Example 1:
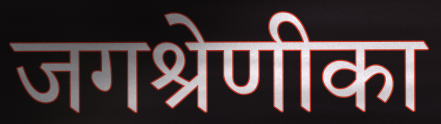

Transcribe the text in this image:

जगश्रेणीका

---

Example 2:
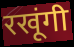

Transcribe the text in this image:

रखूंगी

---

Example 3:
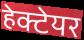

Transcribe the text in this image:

हेक्टेयर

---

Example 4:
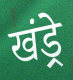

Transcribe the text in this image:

खंड्रे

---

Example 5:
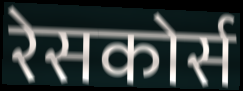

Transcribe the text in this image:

रेसकोर्स